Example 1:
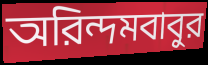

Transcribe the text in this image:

অরিন্দমবাবুর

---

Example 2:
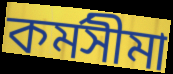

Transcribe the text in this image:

কর্মসীমা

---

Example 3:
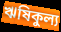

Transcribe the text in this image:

ঋষিকুল্য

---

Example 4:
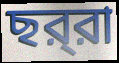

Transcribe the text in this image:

ছর্‌রা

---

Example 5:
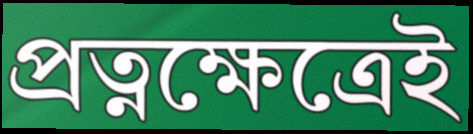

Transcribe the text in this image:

প্রত্নক্ষেত্রেই